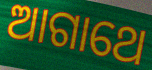
ଆଗାଥେ